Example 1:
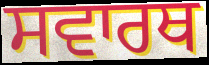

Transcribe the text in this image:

ਸਵਾਰਥ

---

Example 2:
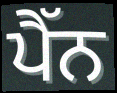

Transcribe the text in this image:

ਪੈੱਨ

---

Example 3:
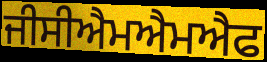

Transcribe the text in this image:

ਜੀਸੀਐਮਐਮਐਫ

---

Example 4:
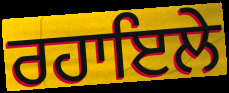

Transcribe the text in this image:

ਰਹਾਇਲੇ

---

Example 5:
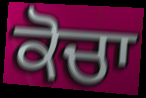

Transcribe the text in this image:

ਕੋਚਾ